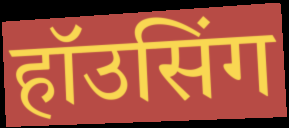
हॉउसिंग